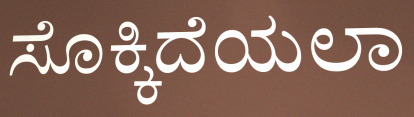
ಸೊಕ್ಕಿದೆಯಲಾ